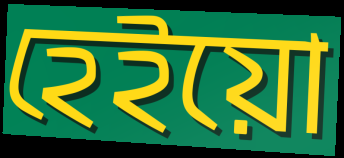
হেইয়ো